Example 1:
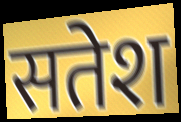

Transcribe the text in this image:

सतेश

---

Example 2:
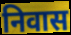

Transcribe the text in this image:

निवास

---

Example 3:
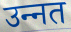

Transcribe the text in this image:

उन्‍नत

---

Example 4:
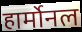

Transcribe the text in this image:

हार्मोनल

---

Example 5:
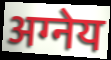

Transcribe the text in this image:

अग्नेय